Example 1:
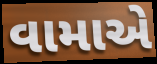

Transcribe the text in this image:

વામાએ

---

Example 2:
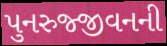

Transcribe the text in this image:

પુનરુજ્જીવનની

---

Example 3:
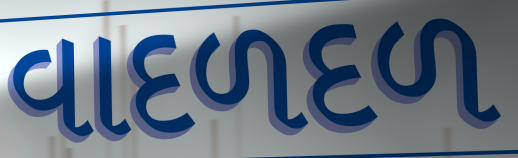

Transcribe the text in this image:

વાદળદળ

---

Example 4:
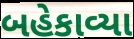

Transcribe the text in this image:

બહેકાવ્યા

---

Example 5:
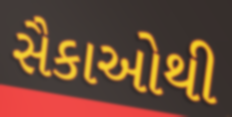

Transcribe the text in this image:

સૈકાઓથી